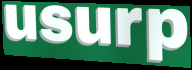
usurp